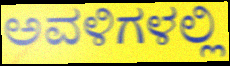
ಅವಳಿಗಳಲ್ಲಿ